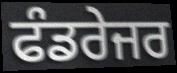
ਫੰਡਰੇਜਰ